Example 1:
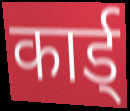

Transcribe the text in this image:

कार्ड्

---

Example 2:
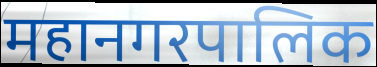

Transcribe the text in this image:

महानगरपालिक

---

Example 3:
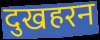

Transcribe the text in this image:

दुखहरन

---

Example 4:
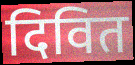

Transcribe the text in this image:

दिवित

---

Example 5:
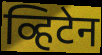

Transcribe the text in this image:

व्हिटेन